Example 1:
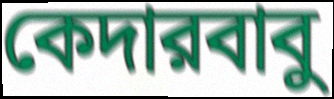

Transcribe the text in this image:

কেদারবাবু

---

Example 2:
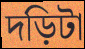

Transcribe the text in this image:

দড়িটা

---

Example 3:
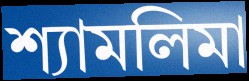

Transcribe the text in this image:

শ্যামলিমা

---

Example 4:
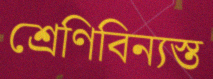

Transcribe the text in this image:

শ্রেণিবিন্যস্ত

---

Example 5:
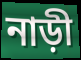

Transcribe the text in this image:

নাড়ী